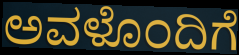
ಅವಳೊಂದಿಗೆ